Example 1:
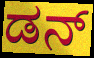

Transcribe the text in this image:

ಡನ್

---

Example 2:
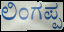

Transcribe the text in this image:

ಲಿಂಗಪ್ಪ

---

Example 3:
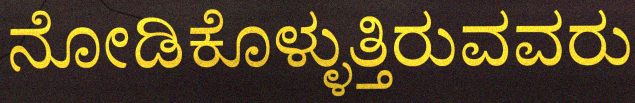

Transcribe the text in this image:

ನೋಡಿಕೊಳ್ಳುತ್ತಿರುವವರು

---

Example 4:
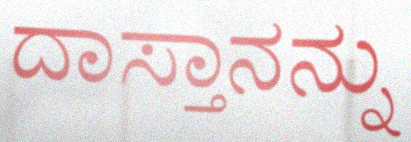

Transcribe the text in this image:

ದಾಸ್ತಾನನ್ನು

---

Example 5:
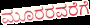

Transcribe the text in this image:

ಮೂರರವರೆಗೆ